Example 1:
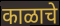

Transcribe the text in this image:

काळाचे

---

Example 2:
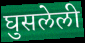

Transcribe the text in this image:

घुसलेली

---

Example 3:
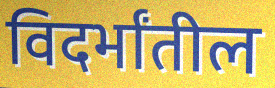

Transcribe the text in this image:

विदर्भांतील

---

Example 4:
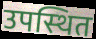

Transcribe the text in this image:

उपस्थित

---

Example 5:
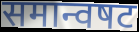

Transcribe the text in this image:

समान्वषट